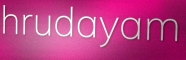
hrudayam